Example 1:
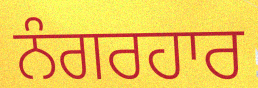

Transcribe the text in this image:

ਨੰਗਰਹਾਰ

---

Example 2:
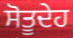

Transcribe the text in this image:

ਸੋਤੂਦੇਹ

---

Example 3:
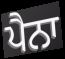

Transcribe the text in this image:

ਪੈਨਾ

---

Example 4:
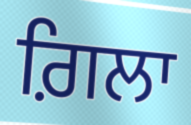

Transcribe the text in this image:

ਗ਼ਿਲਾ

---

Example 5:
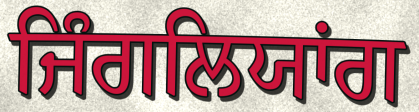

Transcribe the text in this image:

ਜਿੰਗਲਿਯਾਂਗ